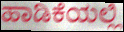
ಹಾಡಿಕೆಯಲ್ಲಿ